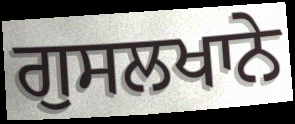
ਗੁਸਲਖਾਨੇ